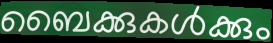
ബൈക്കുകൾക്കും